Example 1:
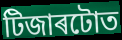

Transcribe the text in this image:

টিজাৰটোত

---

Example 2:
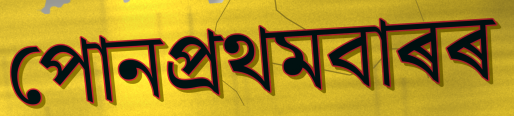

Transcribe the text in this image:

পোনপ্ৰথমবাৰৰ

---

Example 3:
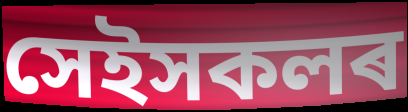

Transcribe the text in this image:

সেইসকলৰ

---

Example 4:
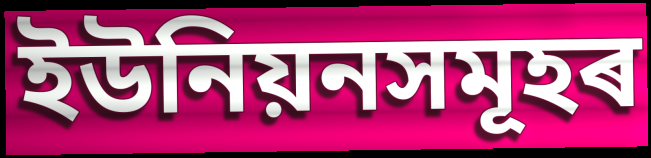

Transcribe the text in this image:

ইউনিয়নসমূহৰ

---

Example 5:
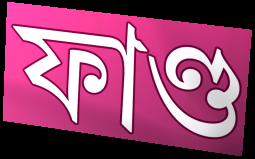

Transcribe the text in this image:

ফাণ্ড